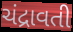
ચંદ્રાવતી